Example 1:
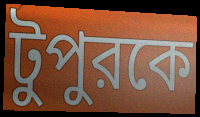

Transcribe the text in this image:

টুপুরকে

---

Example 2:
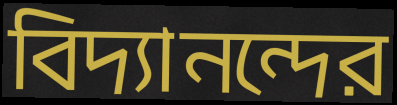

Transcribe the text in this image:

বিদ্যানন্দের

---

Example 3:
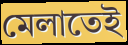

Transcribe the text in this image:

মেলাতেই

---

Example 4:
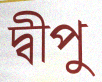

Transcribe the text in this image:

দ্বীপু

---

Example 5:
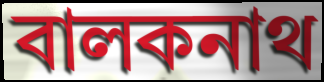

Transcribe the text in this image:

বালকনাথ